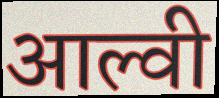
आल्वी